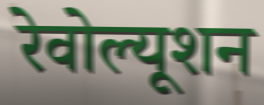
रेवोल्यूशन